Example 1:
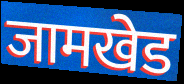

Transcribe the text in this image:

जामखेड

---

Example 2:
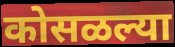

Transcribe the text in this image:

कोसळल्या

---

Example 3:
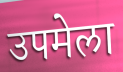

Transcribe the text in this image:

उपमेला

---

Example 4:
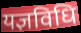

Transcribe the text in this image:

यज्ञविधि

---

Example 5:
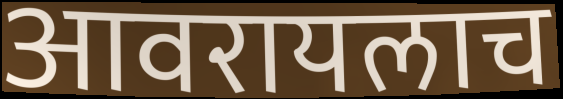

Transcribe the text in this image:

आवरायलाच